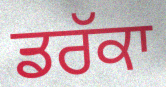
ਡਰੱਕਾ